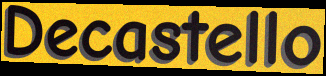
Decastello